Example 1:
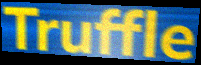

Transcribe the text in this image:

Truffle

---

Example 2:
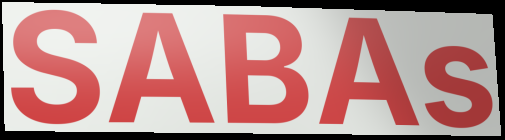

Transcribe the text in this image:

SABAs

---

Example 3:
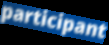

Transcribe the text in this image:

participant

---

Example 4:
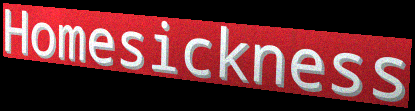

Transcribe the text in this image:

Homesickness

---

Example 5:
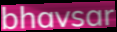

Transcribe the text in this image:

bhavsar